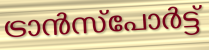
ട്രാൻസ്‌പോർട്ട്